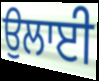
ਉਲਾਈ